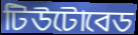
টিউটোবেড